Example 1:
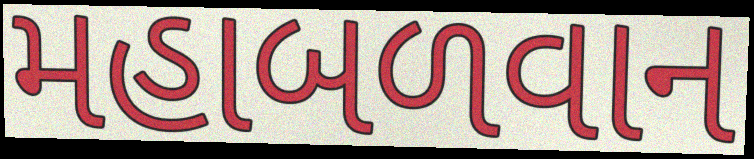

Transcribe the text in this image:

મહાબળવાન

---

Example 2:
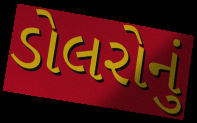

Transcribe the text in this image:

ડોલરોનું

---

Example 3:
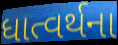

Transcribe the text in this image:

ધાત્વર્થના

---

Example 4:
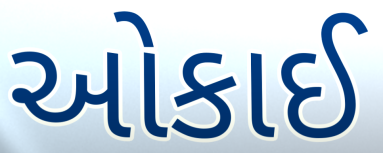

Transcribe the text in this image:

ઓકાઈ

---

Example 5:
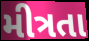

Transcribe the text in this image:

મીત્રતા